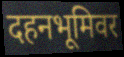
दहनभूमिवर